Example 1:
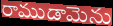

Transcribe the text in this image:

రాముడామెను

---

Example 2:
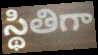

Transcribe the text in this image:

స్థితిగా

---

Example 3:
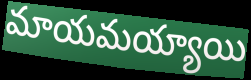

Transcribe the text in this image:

మాయమయ్యాయి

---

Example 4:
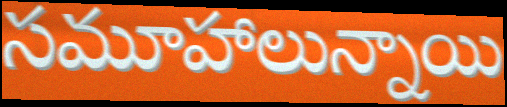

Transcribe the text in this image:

సమూహాలున్నాయి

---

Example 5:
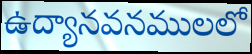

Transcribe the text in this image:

ఉద్యానవనములలో